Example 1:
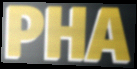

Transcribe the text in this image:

PHA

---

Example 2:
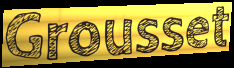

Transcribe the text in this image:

Grousset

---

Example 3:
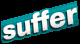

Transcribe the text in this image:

suffer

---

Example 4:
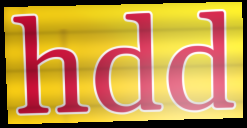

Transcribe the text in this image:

hdd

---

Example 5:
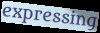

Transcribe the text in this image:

expressing